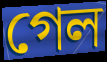
গেল